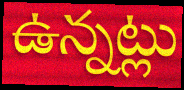
ఉన్నట్లు